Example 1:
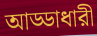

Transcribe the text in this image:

আড্ডাধারী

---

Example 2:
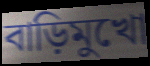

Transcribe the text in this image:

বাড়িমুখো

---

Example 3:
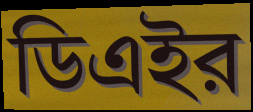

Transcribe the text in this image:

ডিএইর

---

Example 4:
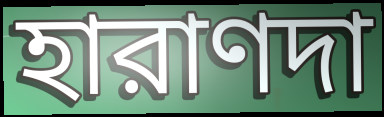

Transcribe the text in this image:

হারাণদা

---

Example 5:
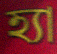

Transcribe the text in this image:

হ্যা